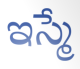
ఇస్మే